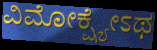
ವಿಮೋಕ್ಷ್ಯೇಽಥ